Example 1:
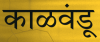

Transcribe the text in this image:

काळवंडू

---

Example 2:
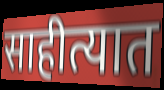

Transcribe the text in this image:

साहीत्यात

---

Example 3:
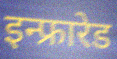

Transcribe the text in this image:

इन्फ्रारेड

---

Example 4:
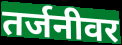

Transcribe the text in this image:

तर्जनीवर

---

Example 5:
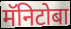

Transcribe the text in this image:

मॅनिटोबा